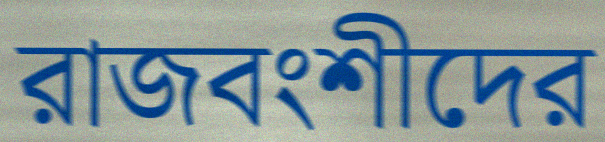
রাজবংশীদের